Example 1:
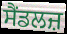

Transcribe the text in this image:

ਸੈਂਡਲਜ਼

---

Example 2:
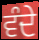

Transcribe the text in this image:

ਵੰਦੇ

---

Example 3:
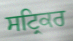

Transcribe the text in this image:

ਸਟ੍ਰਿਕਰ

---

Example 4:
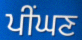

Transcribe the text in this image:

ਪੀਂਘਣ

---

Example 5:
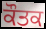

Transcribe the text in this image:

ਕੌਤਕ